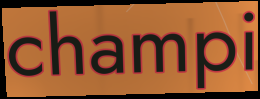
champi